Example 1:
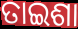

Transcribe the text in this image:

ତାଇଶା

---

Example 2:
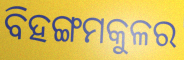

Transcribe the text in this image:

ବିହଙ୍ଗମକୁଳର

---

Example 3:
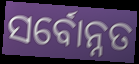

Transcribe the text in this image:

ସର୍ବୋନ୍ନତ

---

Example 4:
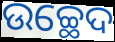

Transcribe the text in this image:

ଉଚ୍ଛେଦ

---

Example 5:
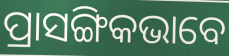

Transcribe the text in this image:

ପ୍ରାସଙ୍ଗିକଭାବେ